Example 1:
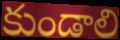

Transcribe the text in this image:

కుండాలి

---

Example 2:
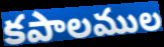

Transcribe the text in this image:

కపాలముల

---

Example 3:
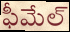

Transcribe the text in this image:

ఫీమేల్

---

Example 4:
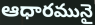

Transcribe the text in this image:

ఆధారమునై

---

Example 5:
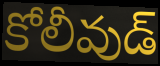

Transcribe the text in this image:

కోలీవుడ్